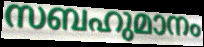
സബഹുമാനം